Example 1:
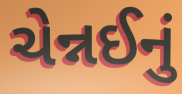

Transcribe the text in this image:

ચેન્નઈનું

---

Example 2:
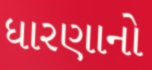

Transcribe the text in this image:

ધારણાનો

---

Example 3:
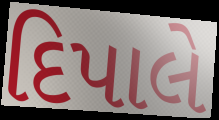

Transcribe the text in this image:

દિપાલે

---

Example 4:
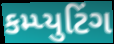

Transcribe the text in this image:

કમ્પ્યુટિંગ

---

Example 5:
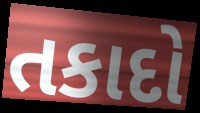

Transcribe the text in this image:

તકાદો